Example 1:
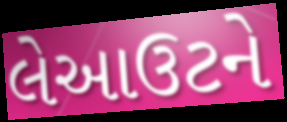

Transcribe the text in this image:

લેઆઉટને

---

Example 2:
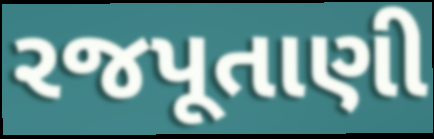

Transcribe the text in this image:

રજપૂતાણી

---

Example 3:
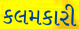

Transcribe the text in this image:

કલમકારી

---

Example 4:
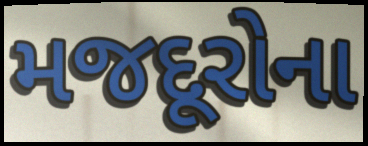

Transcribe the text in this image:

મજદૂરોના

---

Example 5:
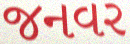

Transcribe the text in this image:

જનવર